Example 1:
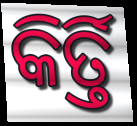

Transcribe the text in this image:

କିର୍ତ୍ତି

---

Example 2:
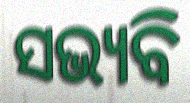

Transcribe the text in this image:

ସଭ୍ୟବି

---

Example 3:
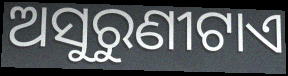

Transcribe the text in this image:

ଅସୁରୁଣୀଟାଏ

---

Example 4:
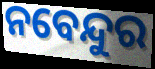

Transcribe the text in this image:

ନବେନ୍ଦୁର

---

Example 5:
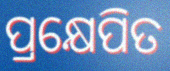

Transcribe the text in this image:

ପ୍ରକ୍ଷେପିତ